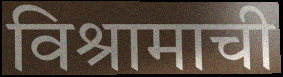
विश्रामाची